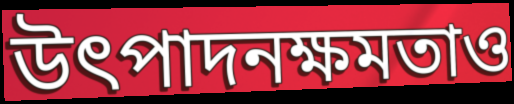
উৎপাদনক্ষমতাও